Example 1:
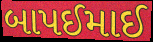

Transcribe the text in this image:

બાપઈમાઈ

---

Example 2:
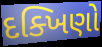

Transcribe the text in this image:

દક્ખિણો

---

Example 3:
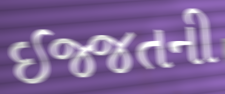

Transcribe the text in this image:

ઈજ્જતની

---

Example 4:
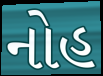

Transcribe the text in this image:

નોહ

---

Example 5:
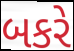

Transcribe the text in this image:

બકરે